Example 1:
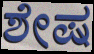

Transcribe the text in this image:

ಶೇಷ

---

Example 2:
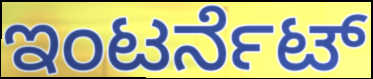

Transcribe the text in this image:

ಇಂಟರ್ನೆಟ್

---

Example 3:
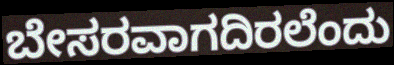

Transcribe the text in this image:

ಬೇಸರವಾಗದಿರಲೆಂದು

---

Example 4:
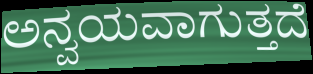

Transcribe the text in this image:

ಅನ್ವಯವಾಗುತ್ತದೆ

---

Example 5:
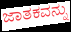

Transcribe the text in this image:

ಜಾತಕವನ್ನು